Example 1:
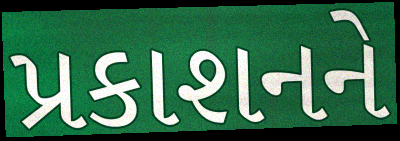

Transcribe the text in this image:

પ્રકાશનને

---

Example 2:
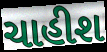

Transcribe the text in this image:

ચાહીશ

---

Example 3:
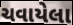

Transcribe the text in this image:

ચવાયેલા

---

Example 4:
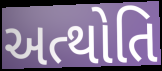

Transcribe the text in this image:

અત્થોતિ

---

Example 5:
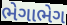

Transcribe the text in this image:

ભેગાભેગ